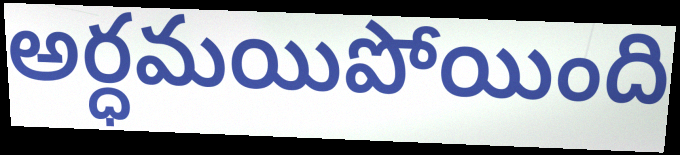
అర్ధమయిపోయింది